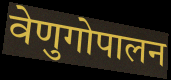
वेणुगोपालन